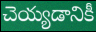
చెయ్యడానికీ